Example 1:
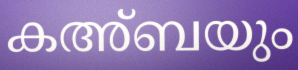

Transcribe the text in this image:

കഅ്ബയും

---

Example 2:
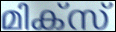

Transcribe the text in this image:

മിക്‌സ്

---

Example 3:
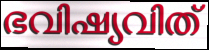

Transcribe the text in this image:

ഭവിഷ്യവിത്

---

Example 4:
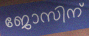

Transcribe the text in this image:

ജോസിന്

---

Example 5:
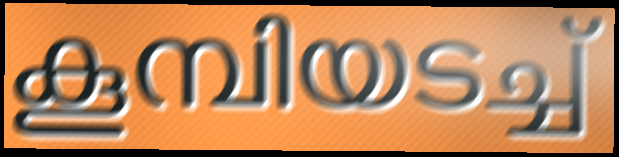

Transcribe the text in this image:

കൂമ്പിയടച്ച്